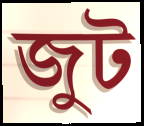
জুট